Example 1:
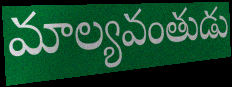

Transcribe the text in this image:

మాల్యవంతుడు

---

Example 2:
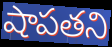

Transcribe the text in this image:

షాపతని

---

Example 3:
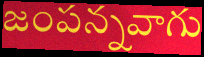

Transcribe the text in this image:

జంపన్నవాగు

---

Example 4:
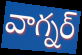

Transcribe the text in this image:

వాగ్నర్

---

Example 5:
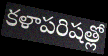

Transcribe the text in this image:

కళాపరిషత్లో